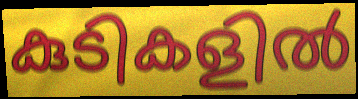
കുടികളിൽ